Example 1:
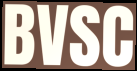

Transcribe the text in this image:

BVSC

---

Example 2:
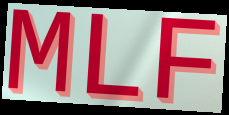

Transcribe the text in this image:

MLF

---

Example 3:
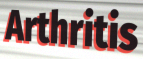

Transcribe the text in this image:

Arthritis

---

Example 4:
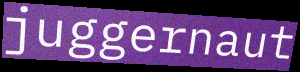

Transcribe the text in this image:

juggernaut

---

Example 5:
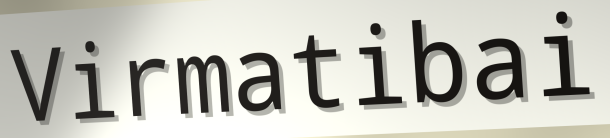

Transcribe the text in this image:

Virmatibai